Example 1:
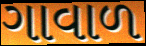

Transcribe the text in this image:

ગાવાળ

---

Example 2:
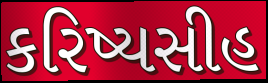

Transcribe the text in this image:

કરિષ્યસીહ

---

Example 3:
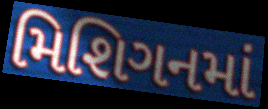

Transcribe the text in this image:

મિશિગનમાં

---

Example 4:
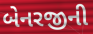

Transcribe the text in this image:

બેનરજીની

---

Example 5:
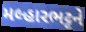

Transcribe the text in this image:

મલ્હારભટ્ટને